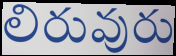
లిరువురు